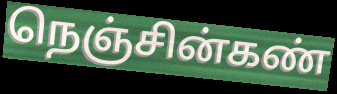
நெஞ்சின்கண்